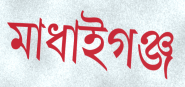
মাধাইগঞ্জ